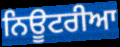
ਨਿਊਟਰੀਆ